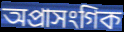
অপ্ৰাসংগিক